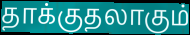
தாக்குதலாகும்